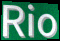
Rio